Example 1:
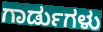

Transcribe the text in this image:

ಗಾರ್ಡುಗಳು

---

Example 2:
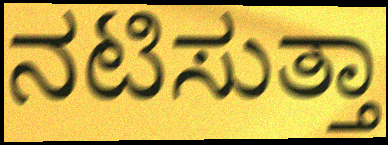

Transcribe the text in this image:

ನಟಿಸುತ್ತಾ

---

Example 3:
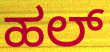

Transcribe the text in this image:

ಹಲ್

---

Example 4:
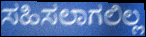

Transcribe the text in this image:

ಸಹಿಸಲಾಗಲಿಲ್ಲ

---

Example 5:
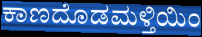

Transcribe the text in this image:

ಕಾಣದೊಡಮಳ್ತಿಯಿಂ